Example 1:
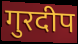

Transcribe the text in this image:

गुरदीप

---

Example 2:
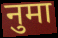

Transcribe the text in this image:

नुमा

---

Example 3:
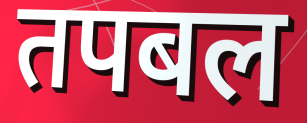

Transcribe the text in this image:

तपबल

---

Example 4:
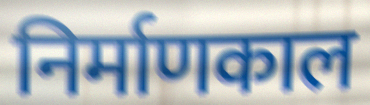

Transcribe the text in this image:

निर्माणकाल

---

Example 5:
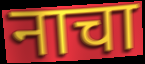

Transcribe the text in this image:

नाचा